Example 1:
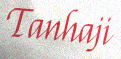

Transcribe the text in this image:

Tanhaji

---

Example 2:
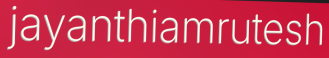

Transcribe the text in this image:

jayanthiamrutesh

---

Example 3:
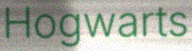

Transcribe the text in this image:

Hogwarts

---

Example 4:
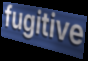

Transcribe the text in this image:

fugitive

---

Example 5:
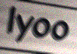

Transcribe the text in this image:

lyoo